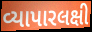
વ્યાપારલક્ષી